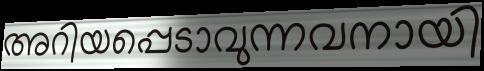
അറിയപ്പെടാവുന്നവനായി